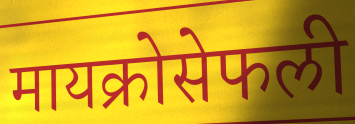
मायक्रोसेफली